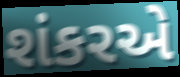
શંકરએ